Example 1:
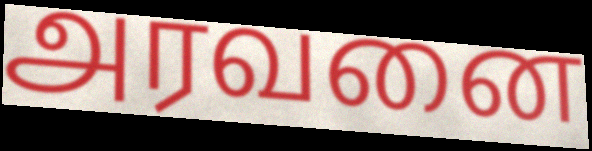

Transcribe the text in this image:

அரவனை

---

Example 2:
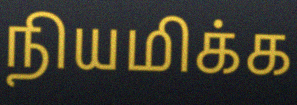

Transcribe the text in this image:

நியமிக்க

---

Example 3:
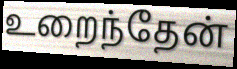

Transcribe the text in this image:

உறைந்தேன்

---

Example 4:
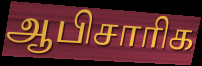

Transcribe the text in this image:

ஆபிசாரிக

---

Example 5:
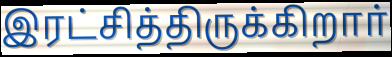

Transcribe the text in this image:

இரட்சித்திருக்கிறார்